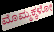
ಮೊಮ್ಮಕ್ಕಳೋ